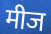
मीज